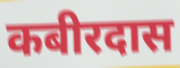
कबीरदास